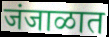
जंजाळात